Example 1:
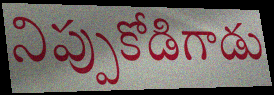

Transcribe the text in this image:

నిప్పుకోడిగాడు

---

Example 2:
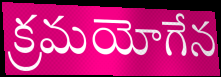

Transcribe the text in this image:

క్రమయోగేన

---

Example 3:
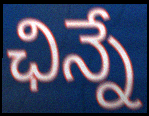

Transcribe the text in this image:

ఛిన్నే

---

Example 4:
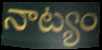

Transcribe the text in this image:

నాట్యం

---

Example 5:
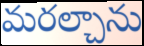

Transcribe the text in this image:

మరల్చాను